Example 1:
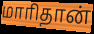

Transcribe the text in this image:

மாரிதான்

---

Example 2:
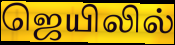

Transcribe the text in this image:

ஜெயிலில்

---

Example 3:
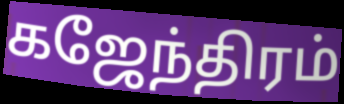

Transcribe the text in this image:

கஜேந்திரம்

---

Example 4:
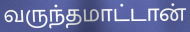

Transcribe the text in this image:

வருந்தமாட்டான்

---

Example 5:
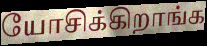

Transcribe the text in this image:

யோசிக்கிறாங்க